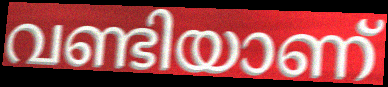
വണ്ടിയാണ്